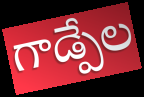
గాడ్పేల